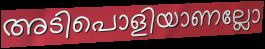
അടിപൊളിയാണല്ലോ